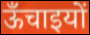
ऊँचाइयों